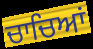
ਚਾਚਿਆਂ